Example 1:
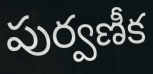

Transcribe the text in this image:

పుర్వణీక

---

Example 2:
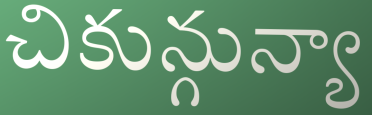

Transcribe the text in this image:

చికున్గున్యా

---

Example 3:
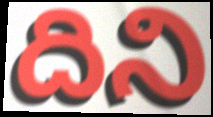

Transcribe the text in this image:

దిని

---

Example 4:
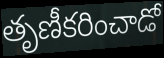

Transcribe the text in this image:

తృణీకరించాడో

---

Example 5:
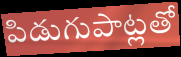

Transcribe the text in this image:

పిడుగుపాట్లతో